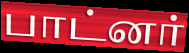
பாட்னர்